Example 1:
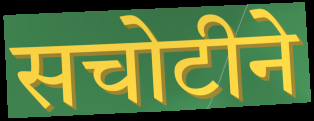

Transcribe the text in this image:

सचोटीने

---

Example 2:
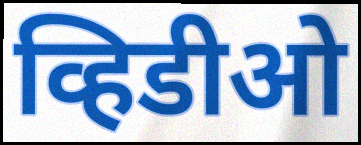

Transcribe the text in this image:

व्हिडीओ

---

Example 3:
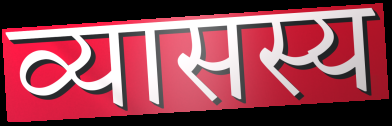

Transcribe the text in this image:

व्यासस्य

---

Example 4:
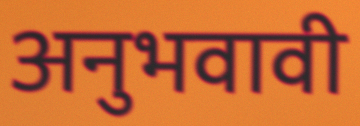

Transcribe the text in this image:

अनुभवावी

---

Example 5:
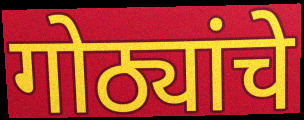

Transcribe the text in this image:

गोठ्यांचे